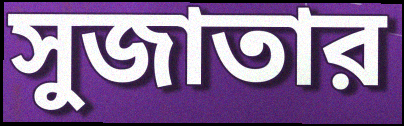
সুজাতার